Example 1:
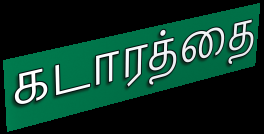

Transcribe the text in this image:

கடாரத்தை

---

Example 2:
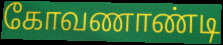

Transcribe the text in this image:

கோவணாண்டி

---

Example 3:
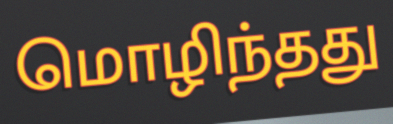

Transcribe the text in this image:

மொழிந்தது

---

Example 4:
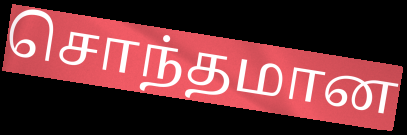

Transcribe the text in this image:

சொந்தமான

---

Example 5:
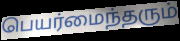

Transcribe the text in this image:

பெயர்மைந்தரும்